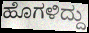
ಹೊಗಳಿದ್ದು